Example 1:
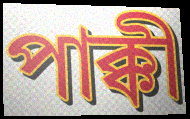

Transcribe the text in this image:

পাক্কী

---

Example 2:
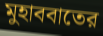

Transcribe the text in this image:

মুহাববাতের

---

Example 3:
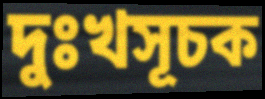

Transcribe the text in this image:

দুঃখসূচক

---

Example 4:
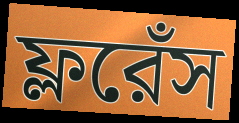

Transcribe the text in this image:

ফ্লরেঁস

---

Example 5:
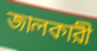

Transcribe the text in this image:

জালকারী